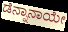
ಡೆನ್ನಾನಾಯೇ